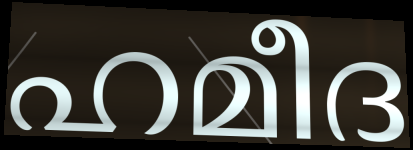
ഹമീദ